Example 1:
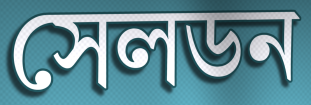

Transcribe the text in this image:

সেলডন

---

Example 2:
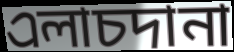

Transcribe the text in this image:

এলাচদানা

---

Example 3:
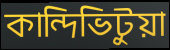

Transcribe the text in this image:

কান্দিভিটুয়া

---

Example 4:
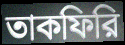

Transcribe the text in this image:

তাকফিরি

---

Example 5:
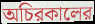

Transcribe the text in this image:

অচিরকালের